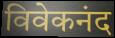
विवेकनंद